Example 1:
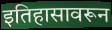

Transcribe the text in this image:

इतिहासावरून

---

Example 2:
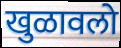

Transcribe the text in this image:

खुळावलो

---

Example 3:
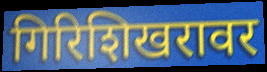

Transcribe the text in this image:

गिरिशिखरावर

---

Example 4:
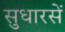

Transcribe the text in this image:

सुधारसें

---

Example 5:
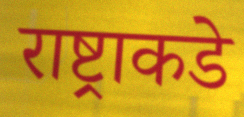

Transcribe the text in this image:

राष्ट्राकडे